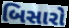
બિસારો